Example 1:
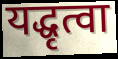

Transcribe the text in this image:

यद्धृत्वा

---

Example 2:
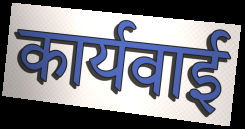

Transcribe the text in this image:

कार्यवाई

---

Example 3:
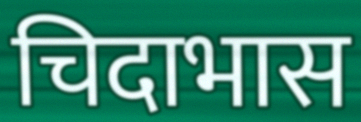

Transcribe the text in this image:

चिदाभास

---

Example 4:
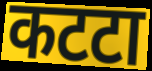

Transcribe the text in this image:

कटटा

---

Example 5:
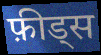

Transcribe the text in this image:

फ़ीड्स